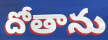
దోతాను